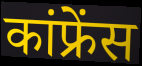
कांफ्रेंस